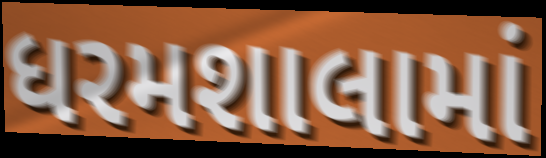
ધરમશાલામાં